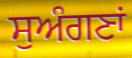
ਸੁਅੰਗਣਾਂ